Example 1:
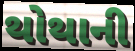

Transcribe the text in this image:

થોથાની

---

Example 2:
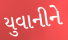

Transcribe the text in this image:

યુવાનીને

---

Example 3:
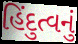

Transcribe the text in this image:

હિંદુત્વનું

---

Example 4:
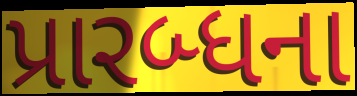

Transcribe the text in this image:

પ્રારબ્ધના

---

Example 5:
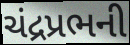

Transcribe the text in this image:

ચંદ્રપ્રભની